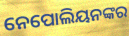
ନେପୋଲିୟନଙ୍କର